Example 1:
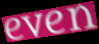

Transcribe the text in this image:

even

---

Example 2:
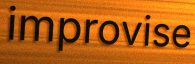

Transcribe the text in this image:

improvise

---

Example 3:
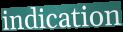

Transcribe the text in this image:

indication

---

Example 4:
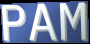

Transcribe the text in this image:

PAM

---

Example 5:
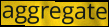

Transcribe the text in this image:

aggregate